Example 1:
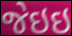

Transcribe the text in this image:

જેઇઇ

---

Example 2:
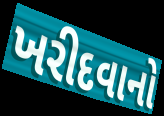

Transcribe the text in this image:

ખરીદવાનો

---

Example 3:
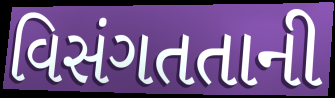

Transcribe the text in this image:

વિસંગતતાની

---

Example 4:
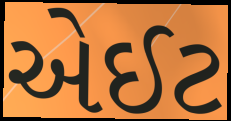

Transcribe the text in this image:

એઈટ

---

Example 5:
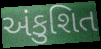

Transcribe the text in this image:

અંકુશિત